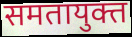
समतायुक्त